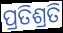
ପ୍ରତିଶ୍ରତି